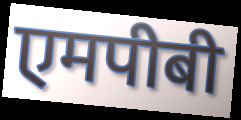
एमपीबी